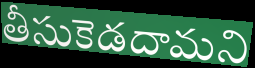
తీసుకెడదామని